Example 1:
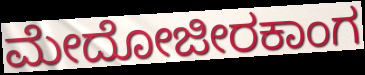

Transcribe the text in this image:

ಮೇದೋಜೀರಕಾಂಗ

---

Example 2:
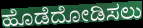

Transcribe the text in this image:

ಹೊಡೆದೋಡಿಸಲು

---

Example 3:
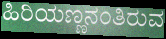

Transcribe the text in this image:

ಹಿರಿಯಣ್ಣನಂತಿರುವ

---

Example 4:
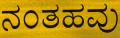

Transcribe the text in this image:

ನಂತಹವು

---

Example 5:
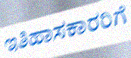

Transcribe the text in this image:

ಇತಿಹಾಸಕಾರರಿಗೆ